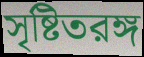
সৃষ্টিতরঙ্গ